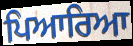
ਪਿਆਰਿਆ